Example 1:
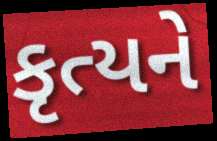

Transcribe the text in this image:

કૃત્યને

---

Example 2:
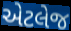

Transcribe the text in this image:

એટલેજ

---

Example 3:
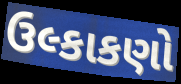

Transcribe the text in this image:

ઉલ્કાકણો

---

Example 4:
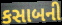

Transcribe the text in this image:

કસાબની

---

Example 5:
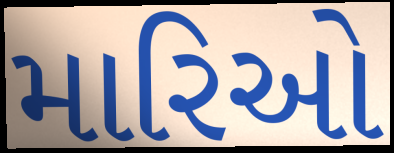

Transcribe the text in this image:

મારિઓ